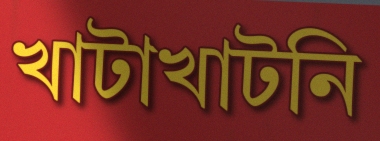
খাটাখাটনি